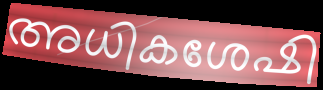
അധികശേഷി